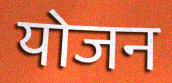
योजन